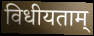
विधीयताम्